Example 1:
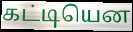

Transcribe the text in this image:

கட்டியென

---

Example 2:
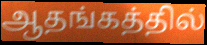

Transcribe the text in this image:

ஆதங்கத்தில்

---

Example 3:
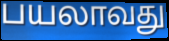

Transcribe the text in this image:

பயலாவது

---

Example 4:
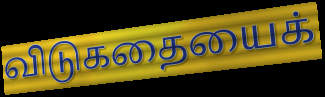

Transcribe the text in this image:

விடுகதையைக்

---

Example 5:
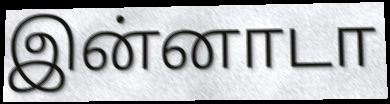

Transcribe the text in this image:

இன்னாடா